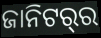
ଜାନିଟର୍‌ର